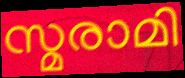
സ്മരാമി